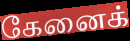
கேனைக்